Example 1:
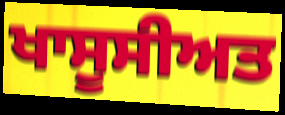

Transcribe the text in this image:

ਖਾਸੂਸੀਅਤ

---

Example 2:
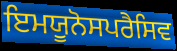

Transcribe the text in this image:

ਇਮਯੂਨੋਸਪਰੈਸਿਵ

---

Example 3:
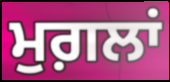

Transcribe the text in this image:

ਮੁਗ਼ਲਾਂ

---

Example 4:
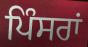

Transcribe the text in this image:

ਪਿੰਸਰਾਂ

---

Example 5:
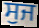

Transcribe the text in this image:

ਸੁਜ